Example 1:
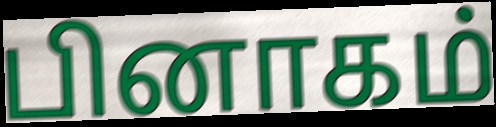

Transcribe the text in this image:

பினாகம்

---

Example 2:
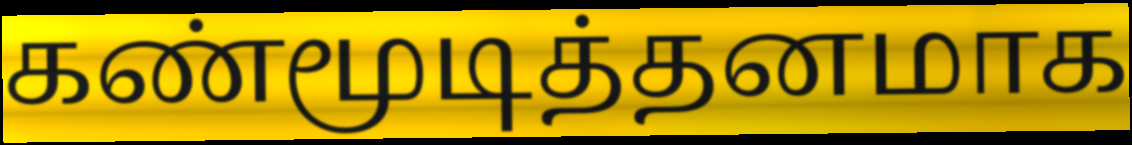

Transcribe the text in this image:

கண்மூடித்தனமாக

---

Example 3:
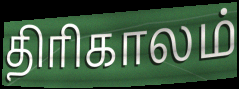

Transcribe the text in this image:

திரிகாலம்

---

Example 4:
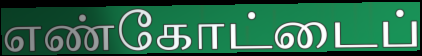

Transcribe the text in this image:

எண்கோட்டைப்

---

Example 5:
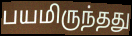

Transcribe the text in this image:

பயமிருந்தது